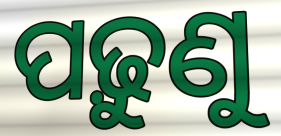
ପଢ଼ୁଣୁ